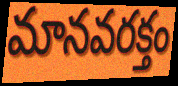
మానవరక్తం